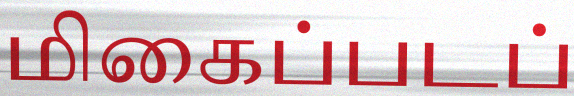
மிகைப்படப்